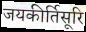
जयकीर्तिसूरि